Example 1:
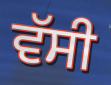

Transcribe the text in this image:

ਵੱਸੀ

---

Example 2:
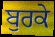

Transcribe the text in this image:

ਬੁਰਕੇ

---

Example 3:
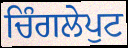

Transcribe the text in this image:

ਚਿੰਗਲੇਪੁਟ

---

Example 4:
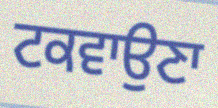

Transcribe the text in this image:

ਟਕਵਾਉਣਾ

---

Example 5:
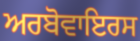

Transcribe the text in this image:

ਅਰਬੋਵਾਇਰਸ